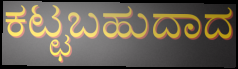
ಕಟ್ಟಬಹುದಾದ